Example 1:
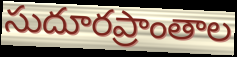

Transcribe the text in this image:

సుదూరప్రాంతాల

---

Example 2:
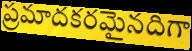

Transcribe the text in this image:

ప్రమాదకరమైనదిగా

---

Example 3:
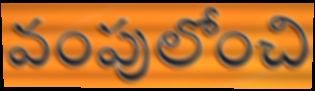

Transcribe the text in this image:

వంపులోంచి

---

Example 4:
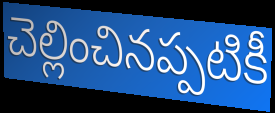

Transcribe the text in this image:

చెల్లించినప్పటికీ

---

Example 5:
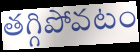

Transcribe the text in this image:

తగ్గిపోవటం